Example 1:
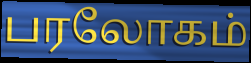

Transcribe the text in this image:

பரலோகம்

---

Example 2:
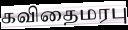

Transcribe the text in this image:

கவிதைமரபு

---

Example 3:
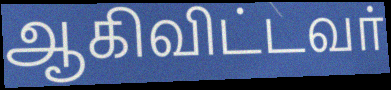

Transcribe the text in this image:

ஆகிவிட்டவர்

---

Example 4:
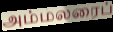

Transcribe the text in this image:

அம்மலரைப்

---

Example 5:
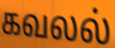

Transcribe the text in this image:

கவலல்